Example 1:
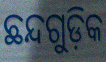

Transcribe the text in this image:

ଛନ୍ଦଗୁଡ଼ିକ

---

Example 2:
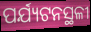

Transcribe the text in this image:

ପର୍ଯ୍ୟଟନସ୍ଥଳୀ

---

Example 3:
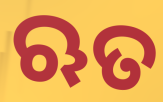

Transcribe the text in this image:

ଋତ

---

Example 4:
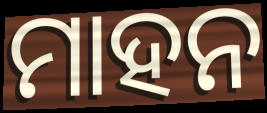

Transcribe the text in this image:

ମାହନ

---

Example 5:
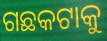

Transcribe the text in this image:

ଗଛକଟାକୁ